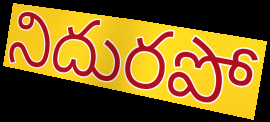
నిదురపో